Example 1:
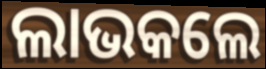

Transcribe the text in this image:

ଲାଭକଲେ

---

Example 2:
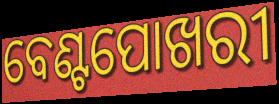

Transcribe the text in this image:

ବେଣ୍ଟପୋଖରୀ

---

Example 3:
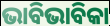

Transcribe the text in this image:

ଭାବିଭାବିକା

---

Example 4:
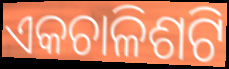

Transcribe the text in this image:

ଏକଚାଳିଶଟି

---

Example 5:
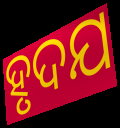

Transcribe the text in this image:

ହୃଦଯ